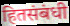
हितसंबंधी